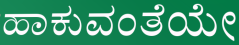
ಹಾಕುವಂತೆಯೇ